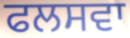
ਫਲਸਵਾ